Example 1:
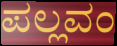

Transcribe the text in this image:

ಪಲ್ಲವಂ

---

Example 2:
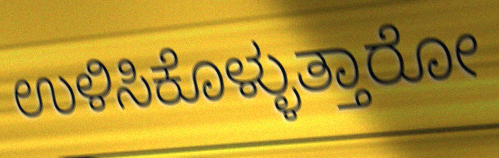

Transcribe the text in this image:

ಉಳಿಸಿಕೊಳ್ಳುತ್ತಾರೋ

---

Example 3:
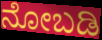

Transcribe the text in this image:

ನೋಬಡಿ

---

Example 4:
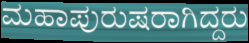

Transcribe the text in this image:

ಮಹಾಪುರುಷರಾಗಿದ್ದರು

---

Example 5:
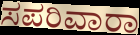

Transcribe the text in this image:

ಸಪರಿವಾರಾ